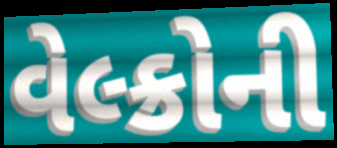
વેલ્ક્રોની